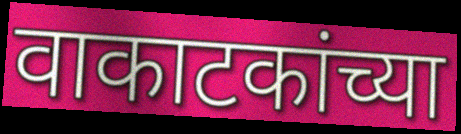
वाकाटकांच्या